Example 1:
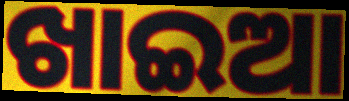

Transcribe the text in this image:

ଖାଇଆ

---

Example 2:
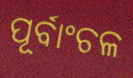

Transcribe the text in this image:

ପୂର୍ବାଂଚଳ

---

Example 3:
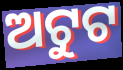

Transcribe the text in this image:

ଅଟୁଟ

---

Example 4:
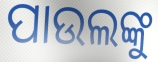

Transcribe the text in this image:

ପାଉଲଙ୍କୁ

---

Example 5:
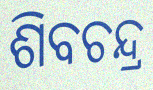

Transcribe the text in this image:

ଶିବଚନ୍ଦ୍ର